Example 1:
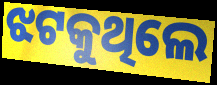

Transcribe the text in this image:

ଝଟକୁଥିଲେ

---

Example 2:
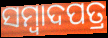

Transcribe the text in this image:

ସମ୍ୱାଦପତ୍ର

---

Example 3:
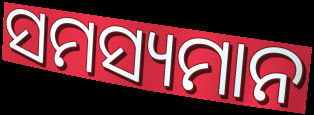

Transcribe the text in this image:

ସମସ୍ୟମାନ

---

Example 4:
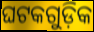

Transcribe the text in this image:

ଘଟକଗୁଡ଼ିକ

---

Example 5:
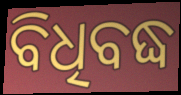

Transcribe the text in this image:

ବିଧିବଦ୍ଧ